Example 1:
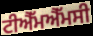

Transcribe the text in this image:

ਟੀਐੱਮਐੱਮਸੀ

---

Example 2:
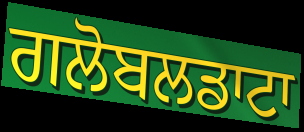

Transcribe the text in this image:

ਗਲੋਬਲਡਾਟਾ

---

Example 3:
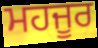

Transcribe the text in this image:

ਮਹਜੂਰ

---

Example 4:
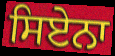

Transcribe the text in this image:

ਸਿਏਨਾ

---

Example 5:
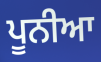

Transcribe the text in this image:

ਪੂਨੀਆ